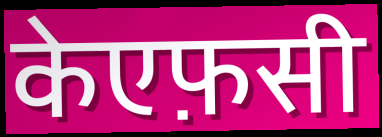
केएफ़सी